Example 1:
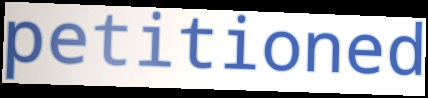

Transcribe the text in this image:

petitioned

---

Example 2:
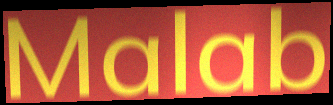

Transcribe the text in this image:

Malab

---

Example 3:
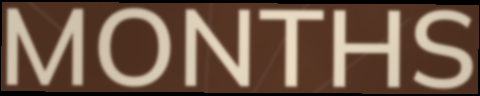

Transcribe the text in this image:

MONTHS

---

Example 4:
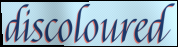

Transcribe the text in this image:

discoloured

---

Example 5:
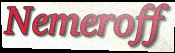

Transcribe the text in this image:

Nemeroff